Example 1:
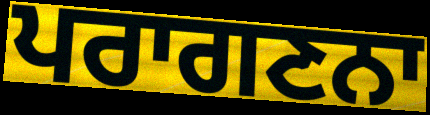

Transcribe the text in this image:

ਪਰਾਗਣਨਾ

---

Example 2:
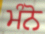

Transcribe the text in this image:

ਮੰਨੋ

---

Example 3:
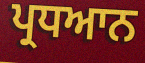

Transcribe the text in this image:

ਪ੍ਰਧਆਨ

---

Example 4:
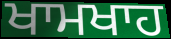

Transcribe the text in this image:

ਖਾਮਖਾਹ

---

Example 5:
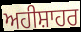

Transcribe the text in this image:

ਅਹੀਸ਼ਾਹਰ